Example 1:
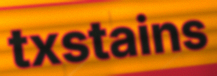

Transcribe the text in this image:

txstains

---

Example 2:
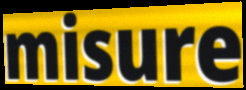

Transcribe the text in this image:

misure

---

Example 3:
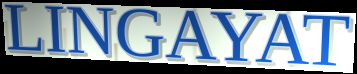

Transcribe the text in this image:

LINGAYAT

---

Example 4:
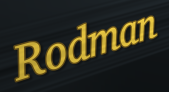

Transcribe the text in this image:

Rodman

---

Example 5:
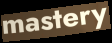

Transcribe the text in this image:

mastery